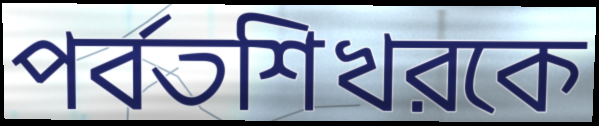
পর্বতশিখরকে